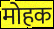
मोहक